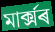
মাৰ্ক্সৰ